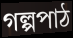
গল্পপাঠ